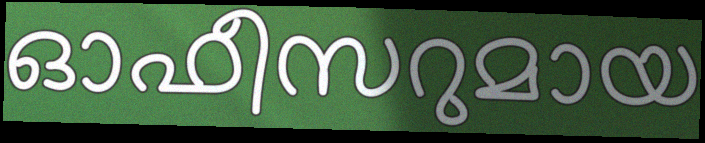
ഓഫീസറുമായ